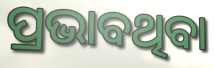
ପ୍ରଭାବଥିବା